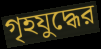
গৃহযুদ্ধের